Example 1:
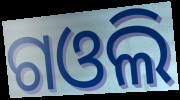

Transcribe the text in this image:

ଗଓଲି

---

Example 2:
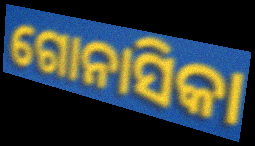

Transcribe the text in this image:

ଗୋନାସିକା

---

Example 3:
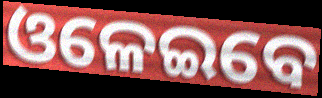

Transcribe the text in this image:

ଓଳେଇବେ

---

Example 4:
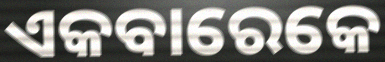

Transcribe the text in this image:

ଏକବାରେକେ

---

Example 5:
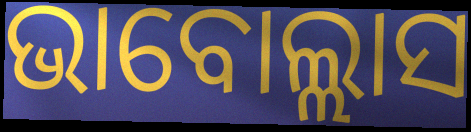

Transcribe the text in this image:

ଭାବୋଲ୍ଲାସ